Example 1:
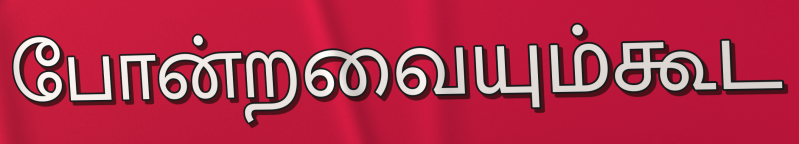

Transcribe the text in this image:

போன்றவையும்கூட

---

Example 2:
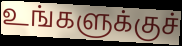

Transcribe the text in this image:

உங்களுக்குச்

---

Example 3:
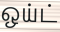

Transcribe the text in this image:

ஒய்ட்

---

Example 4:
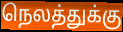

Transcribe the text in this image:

நெலத்துக்கு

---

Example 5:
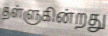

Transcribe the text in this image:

தள்ளுகின்றது